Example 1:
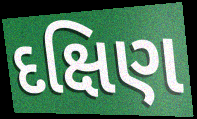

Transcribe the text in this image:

દક્ષિણ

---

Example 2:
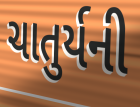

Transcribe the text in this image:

ચાતુર્યની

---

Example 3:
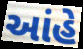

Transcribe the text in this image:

આંહે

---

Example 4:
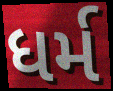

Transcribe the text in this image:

ધર્મ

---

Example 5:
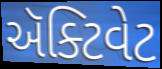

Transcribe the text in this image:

ઍક્ટિવેટ